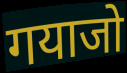
गयाजो